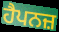
ਹੈਪਨਜ਼